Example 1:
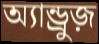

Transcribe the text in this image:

অ্যান্ড্রুজ়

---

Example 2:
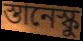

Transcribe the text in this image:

স্তানেস্কু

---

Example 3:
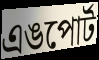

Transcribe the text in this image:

এঙপোর্ট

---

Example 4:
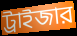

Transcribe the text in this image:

ট্রাইজার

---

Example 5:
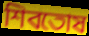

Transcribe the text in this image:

শিবতোষ